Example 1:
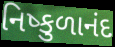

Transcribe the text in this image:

નિષ્કુળાનંદ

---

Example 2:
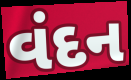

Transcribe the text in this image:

વંદન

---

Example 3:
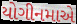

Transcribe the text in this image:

યોગીનમાએ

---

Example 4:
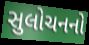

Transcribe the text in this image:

સુલોચનનો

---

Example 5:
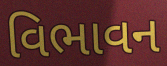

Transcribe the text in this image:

વિભાવન